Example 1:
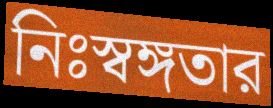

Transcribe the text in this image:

নিঃস্বঙ্গতার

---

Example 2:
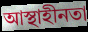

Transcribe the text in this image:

আস্থাহীনতা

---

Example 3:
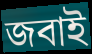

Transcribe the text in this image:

জবাই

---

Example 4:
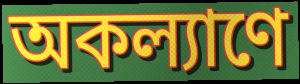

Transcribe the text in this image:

অকল্যাণে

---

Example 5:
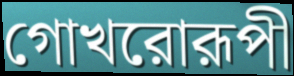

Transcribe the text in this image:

গোখরোরূপী